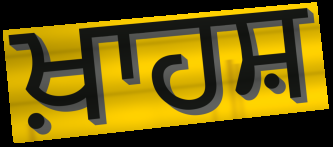
ਖ਼ਾਹਸ਼